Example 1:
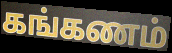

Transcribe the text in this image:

கங்கணம்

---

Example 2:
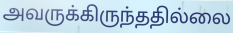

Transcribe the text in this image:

அவருக்கிருந்ததில்லை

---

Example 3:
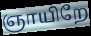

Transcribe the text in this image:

ஞாயிறே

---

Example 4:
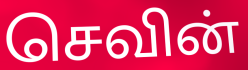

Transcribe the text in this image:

செவின்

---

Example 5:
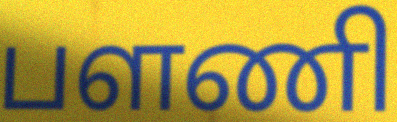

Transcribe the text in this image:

பளணி